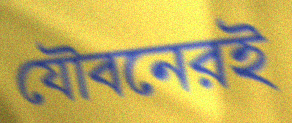
যৌবনেরই